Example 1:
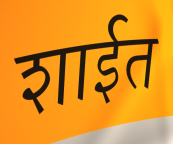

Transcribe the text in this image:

शाईत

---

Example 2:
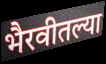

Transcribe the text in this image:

भैरवीतल्या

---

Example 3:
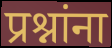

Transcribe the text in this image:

प्रश्नांना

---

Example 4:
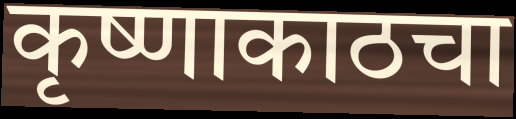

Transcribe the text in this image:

कृष्णाकाठचा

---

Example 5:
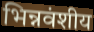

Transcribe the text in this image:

भिन्नवंशीय